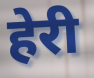
हेरी